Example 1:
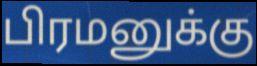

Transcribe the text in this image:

பிரமனுக்கு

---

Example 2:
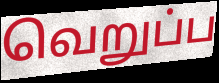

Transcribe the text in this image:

வெறுப்ப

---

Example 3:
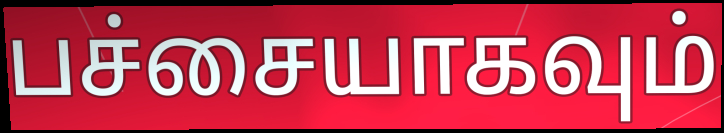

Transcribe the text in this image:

பச்சையாகவும்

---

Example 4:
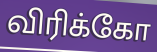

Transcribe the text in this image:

விரிக்கோ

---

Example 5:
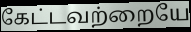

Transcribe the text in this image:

கேட்டவற்றையே